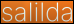
salilda